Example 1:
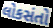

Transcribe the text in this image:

લોકસંતો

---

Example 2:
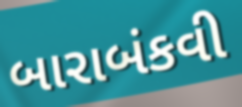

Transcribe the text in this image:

બારાબંકવી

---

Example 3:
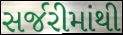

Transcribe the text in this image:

સર્જરીમાંથી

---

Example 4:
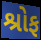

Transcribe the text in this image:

શ્રોફ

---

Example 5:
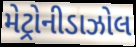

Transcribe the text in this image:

મેટ્રોનીડાઝોલ